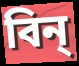
বিন্